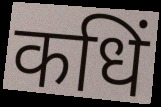
कधिं